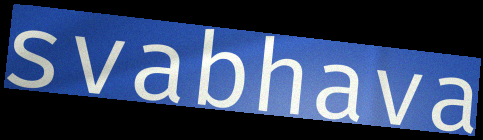
svabhava